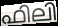
ഫിലി